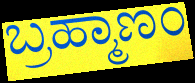
ಬ್ರಹ್ಮಾಣಂ